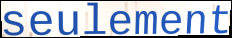
seulement